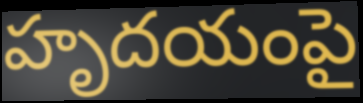
హృదయంపై